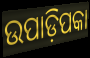
ଉପାଡ଼ିପକା